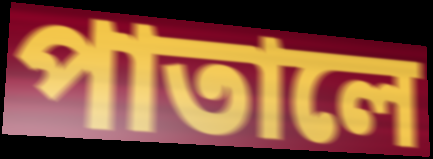
পাতালে